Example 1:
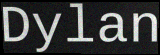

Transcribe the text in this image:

Dylan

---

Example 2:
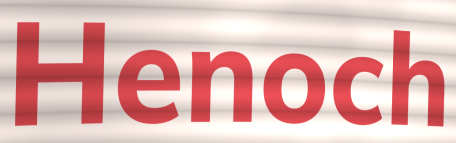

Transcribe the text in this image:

Henoch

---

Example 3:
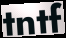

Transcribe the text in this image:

tntf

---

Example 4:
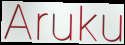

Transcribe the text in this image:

Aruku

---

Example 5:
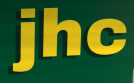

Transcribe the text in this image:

jhc